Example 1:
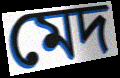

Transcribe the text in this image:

মেদ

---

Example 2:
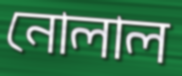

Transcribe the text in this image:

নোলাল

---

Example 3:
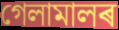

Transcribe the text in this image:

গেলামালৰ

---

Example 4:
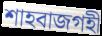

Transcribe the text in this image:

শাহবাজগহী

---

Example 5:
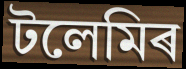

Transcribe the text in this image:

টলেমিৰ